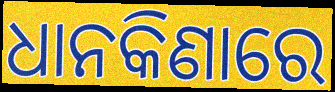
ଧାନକିଣାରେ